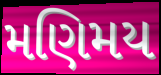
મણિમય